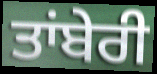
ਤਾਂਬੇਰੀ